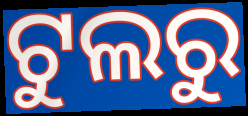
ଟୁଲରୁ